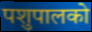
पशुपालको